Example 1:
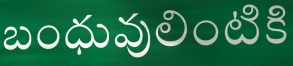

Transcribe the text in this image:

బంధువులింటికి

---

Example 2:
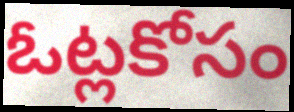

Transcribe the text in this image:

ఓట్లకోసం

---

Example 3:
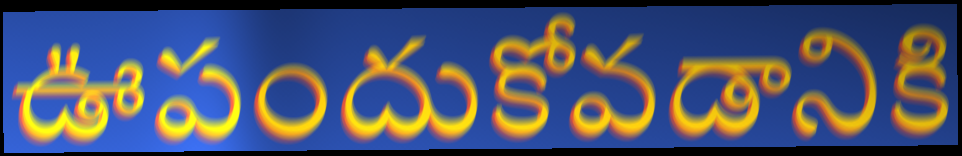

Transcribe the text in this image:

ఊపందుకోవడానికి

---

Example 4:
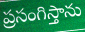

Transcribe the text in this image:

ప్రసంగిస్తాను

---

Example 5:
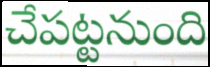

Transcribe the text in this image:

చేపట్టనుంది